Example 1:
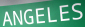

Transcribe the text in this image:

ANGELES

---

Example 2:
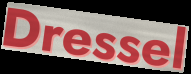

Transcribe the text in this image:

Dressel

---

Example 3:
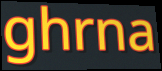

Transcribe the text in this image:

ghrna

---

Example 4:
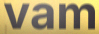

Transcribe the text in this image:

vam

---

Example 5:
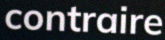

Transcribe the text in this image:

contraire